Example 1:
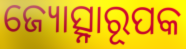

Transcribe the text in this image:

ଜ୍ୟୋତ୍ସ୍ନାରୂପକ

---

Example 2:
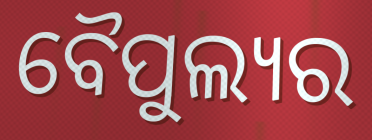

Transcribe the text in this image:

ବୈପୁଲ୍ୟର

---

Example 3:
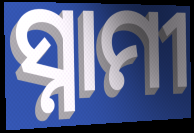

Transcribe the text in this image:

ସ୍ନାମୀ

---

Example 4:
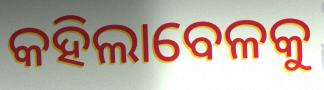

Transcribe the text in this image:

କହିଲାବେଳକୁ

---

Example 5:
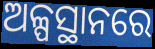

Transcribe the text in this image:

ଅଳ୍ପସ୍ଥାନରେ